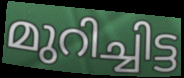
മുറിച്ചിട്ട